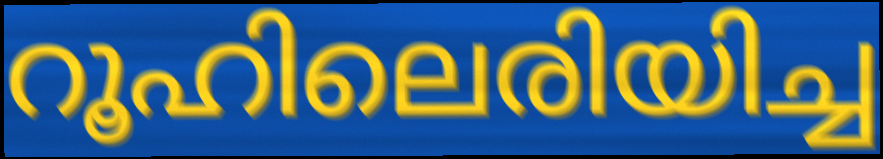
റൂഹിലെരിയിച്ച